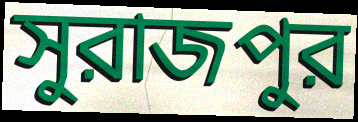
সুরাজপুর